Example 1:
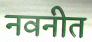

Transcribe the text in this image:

नवनीत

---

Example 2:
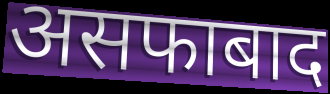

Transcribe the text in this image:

असफाबाद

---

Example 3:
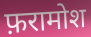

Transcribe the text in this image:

फ़रामोश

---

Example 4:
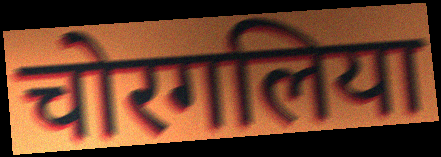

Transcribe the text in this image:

चोरगलिया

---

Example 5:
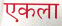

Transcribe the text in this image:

एकला